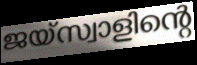
ജയ്സ്വാളിന്റെ